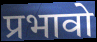
प्रभावो